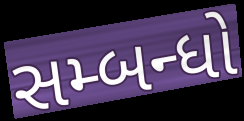
સમ્બન્ધો